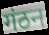
गंठन